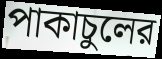
পাকাচুলের